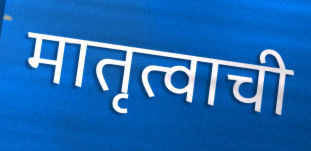
मातृत्वाची